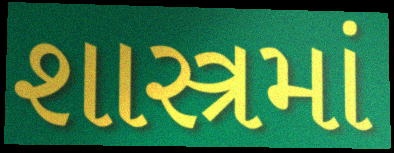
શાસ્ત્રમાં